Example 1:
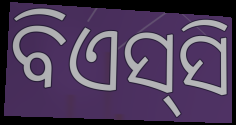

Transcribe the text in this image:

ବିଏସ୍‌ସି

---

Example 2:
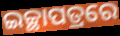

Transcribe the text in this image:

ଇଚ୍ଛାପତ୍ରରେ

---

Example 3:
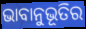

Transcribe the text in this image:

ଭାବାନୁଭୂତିର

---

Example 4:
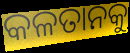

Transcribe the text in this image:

କଳତାନକୁ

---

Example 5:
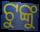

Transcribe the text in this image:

ଟୁଙ୍କୁ